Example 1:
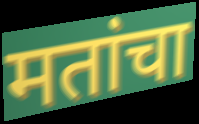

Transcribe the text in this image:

मतांचा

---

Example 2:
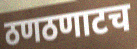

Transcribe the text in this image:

ठणठणाटच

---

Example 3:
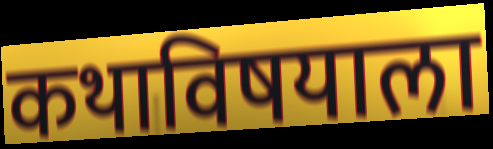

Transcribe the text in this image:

कथाविषयाला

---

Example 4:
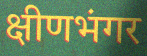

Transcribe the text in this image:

क्षीणभंगर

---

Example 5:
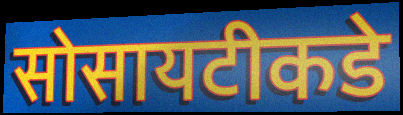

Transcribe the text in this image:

सोसायटीकडे